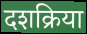
दशक्रिया